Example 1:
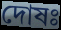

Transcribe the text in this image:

দোষঃ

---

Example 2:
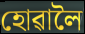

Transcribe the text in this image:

হোৱালৈ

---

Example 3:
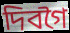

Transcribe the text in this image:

দিবগৈ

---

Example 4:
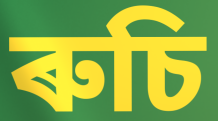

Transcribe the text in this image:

ৰুচি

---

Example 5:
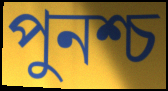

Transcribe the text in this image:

পুনশ্চ